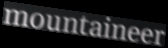
mountaineer